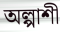
অল্পাশী